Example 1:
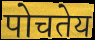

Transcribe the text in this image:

पोचतेय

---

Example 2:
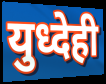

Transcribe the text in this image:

युध्देही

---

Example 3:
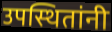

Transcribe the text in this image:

उपस्थितांनी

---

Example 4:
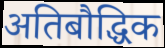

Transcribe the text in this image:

अतिबौद्धिक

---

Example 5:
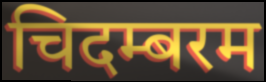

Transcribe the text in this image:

चिदम्बरम